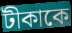
টীকাকে